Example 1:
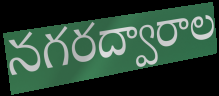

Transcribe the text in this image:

నగరద్వారాల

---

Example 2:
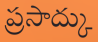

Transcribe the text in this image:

ప్రసాద్కు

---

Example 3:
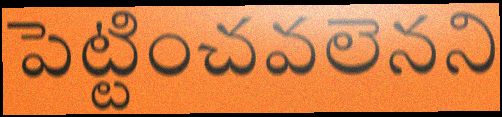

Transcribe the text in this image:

పెట్టించవలెనని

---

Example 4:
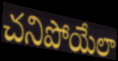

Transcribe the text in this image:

చనిపోయేలా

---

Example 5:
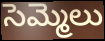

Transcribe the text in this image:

సెమ్మెలు